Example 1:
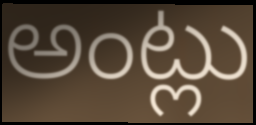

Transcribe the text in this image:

అంట్లు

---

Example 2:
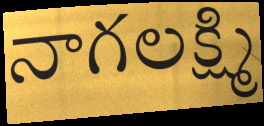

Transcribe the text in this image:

నాగలక్ష్మి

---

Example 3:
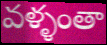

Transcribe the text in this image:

వళ్ళంతా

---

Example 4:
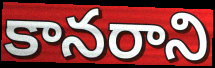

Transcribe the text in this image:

కానరాని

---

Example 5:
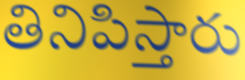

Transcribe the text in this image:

తినిపిస్తారు